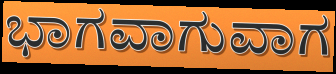
ಭಾಗವಾಗುವಾಗ